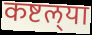
कष्टल्या